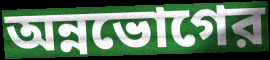
অন্নভোগের